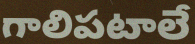
గాలిపటాలే